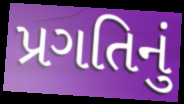
પ્રગતિનું